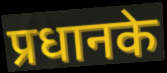
प्रधानके